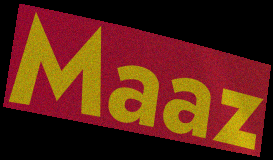
Maaz